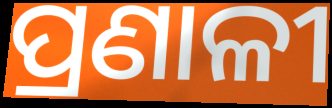
ପ୍ରଣାଳୀ